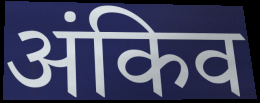
अंकिव